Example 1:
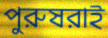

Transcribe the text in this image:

পুরুষরাই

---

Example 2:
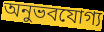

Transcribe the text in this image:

অনুভবযোগ্য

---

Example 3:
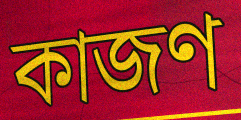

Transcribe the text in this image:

কাজণ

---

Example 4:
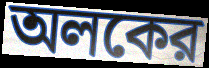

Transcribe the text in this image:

অলকের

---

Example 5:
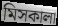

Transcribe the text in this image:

মিসকালা